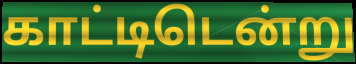
காட்டிடென்று